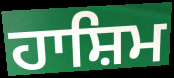
ਹਾਸ਼ਿਮ